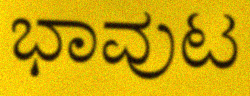
ಭಾವುಟ